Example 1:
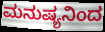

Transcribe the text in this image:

ಮನುಷ್ಯನಿಂದ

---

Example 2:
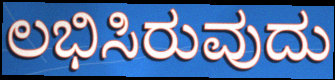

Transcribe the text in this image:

ಲಭಿಸಿರುವುದು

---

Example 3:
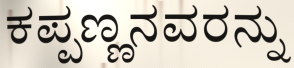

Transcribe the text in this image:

ಕಪ್ಪಣ್ಣನವರನ್ನು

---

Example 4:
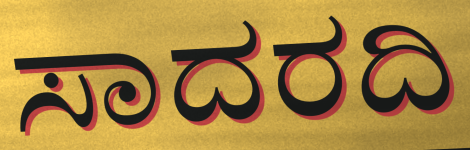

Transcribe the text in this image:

ಸಾದರದಿ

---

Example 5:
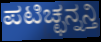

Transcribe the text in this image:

ಪಟಿಚ್ಛನ್ನನ್ತಿ